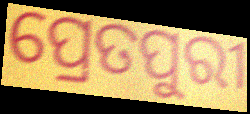
ପ୍ରେତପୁରୀ